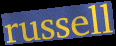
russell